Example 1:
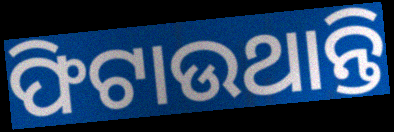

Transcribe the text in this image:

ଫିଟାଉଥାନ୍ତି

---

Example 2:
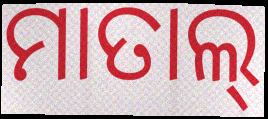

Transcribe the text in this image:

ମାତାଲ୍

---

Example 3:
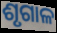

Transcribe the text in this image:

ଶୃଗାଳ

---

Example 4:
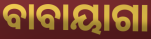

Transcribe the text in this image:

ବାବାୟାଗା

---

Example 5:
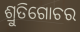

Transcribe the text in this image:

ଶ୍ରୁତିଗୋଚର